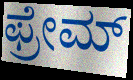
ಫ್ರೇಮ್